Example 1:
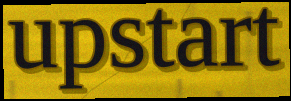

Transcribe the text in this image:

upstart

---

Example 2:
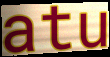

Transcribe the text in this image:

atu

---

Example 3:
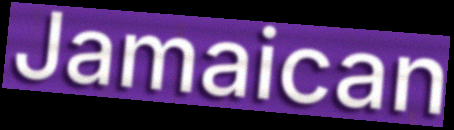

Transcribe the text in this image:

Jamaican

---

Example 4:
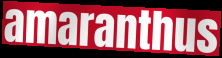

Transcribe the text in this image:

amaranthus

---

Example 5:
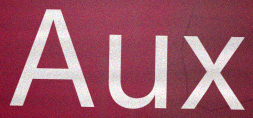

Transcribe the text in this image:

Aux